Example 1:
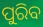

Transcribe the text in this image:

ପୁରିବ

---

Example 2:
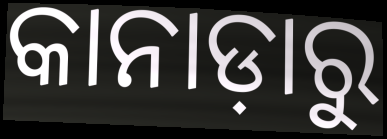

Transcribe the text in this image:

କାନାଡ଼ାରୁ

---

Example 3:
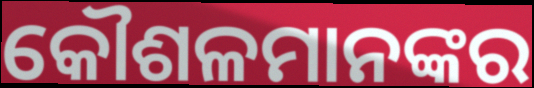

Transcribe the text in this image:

କୌଶଳମାନଙ୍କର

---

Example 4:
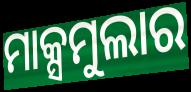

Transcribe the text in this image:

ମାକ୍ସମୁଲାର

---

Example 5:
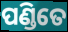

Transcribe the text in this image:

ପଣ୍ଡିତେ